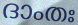
ദാംതഃ